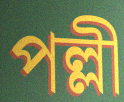
পল্লী